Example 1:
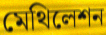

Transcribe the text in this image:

মেথিলেশন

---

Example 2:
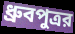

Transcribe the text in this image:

ধ্রুবপুত্রর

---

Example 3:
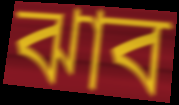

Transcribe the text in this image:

ঝাব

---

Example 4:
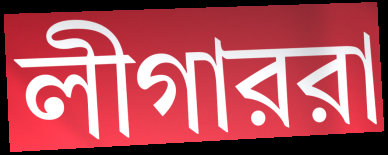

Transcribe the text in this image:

লীগাররা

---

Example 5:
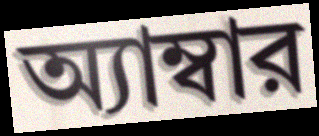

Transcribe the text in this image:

অ্যাম্বার